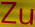
Zu